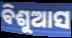
ବିଶୁଆସ